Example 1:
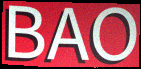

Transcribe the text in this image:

BAO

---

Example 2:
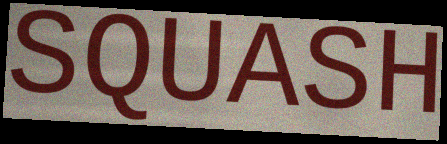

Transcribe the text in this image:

SQUASH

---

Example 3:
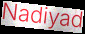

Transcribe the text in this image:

Nadiyad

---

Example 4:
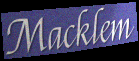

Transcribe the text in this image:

Macklem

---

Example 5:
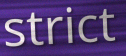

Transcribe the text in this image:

strict